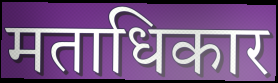
मताधिकार